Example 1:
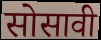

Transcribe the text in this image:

सोसावी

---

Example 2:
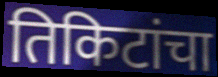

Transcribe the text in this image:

तिकिटांचा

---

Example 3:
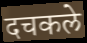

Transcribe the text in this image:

दचकले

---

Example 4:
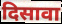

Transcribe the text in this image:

दिसावा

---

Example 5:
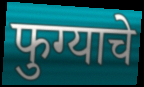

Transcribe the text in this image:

फुग्याचे